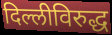
दिल्लीविरुद्ध